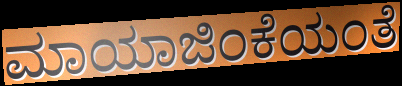
ಮಾಯಾಜಿಂಕೆಯಂತೆ